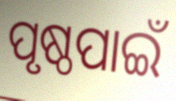
ପୃଷ୍ଠପାଇଁ